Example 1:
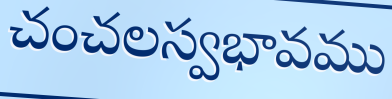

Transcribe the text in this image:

చంచలస్వభావము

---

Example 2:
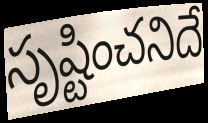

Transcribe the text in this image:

సృష్టించనిదే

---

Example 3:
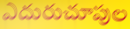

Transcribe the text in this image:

ఎదురుచూపుల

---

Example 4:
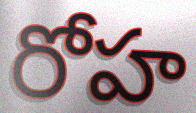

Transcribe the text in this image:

రోహ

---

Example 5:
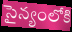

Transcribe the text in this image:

సైన్యంలోకి